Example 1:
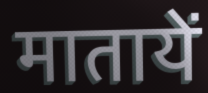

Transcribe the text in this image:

मातायें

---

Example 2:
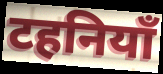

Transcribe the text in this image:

टहनियाँ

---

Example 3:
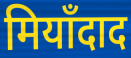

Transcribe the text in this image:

मियाँदाद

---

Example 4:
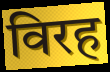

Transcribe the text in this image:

विरह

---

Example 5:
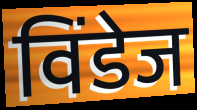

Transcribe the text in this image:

विंडेज